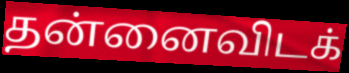
தன்னைவிடக்